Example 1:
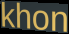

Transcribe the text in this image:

khon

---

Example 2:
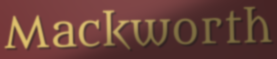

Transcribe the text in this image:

Mackworth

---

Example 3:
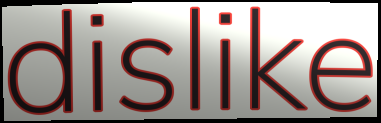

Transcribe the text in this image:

dislike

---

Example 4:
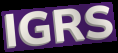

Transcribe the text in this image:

IGRS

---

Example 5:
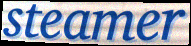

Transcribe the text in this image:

steamer